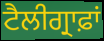
ਟੈਲੀਗ੍ਰਾਫ਼ਾਂ